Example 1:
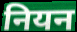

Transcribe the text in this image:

नियन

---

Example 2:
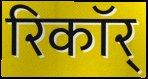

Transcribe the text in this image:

रिकॉर्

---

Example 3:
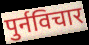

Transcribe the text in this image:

पुर्नविचार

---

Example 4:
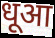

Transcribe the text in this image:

धूआ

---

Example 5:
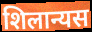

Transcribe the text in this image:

शिलान्यस